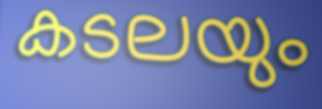
കടലയും